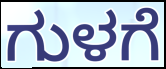
ಗುಳಗೆ